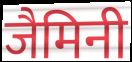
जैमिनी